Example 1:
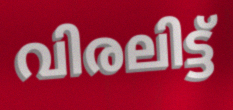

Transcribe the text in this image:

വിരലിട്ട്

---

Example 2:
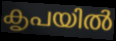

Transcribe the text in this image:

കൃപയിൽ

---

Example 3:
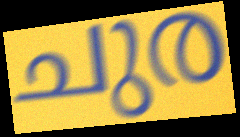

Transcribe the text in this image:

ചുര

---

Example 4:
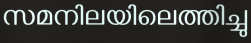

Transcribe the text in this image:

സമനിലയിലെത്തിച്ചു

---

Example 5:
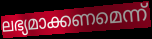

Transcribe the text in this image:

ലഭ്യമാക്കണമെന്ന്